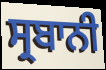
ਸ੍ਰਬਾਨੀ